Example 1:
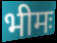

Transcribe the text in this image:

भीमः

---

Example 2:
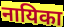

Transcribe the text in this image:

नायिका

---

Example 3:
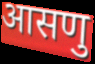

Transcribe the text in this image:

आसणु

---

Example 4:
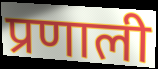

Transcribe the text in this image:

प्रणाली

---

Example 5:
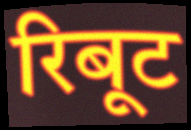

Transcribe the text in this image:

रिबूट